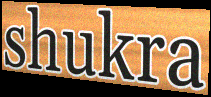
shukra